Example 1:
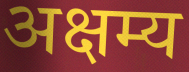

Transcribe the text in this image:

अक्षम्‍य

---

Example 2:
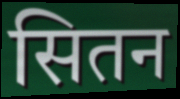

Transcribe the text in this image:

सितन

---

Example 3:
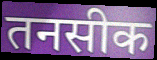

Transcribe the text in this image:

तनसीक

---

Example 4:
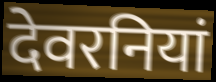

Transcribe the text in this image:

देवरनियां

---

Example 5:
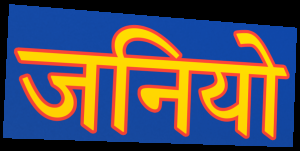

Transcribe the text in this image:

जनियो